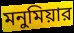
মনুমিয়ার